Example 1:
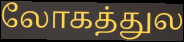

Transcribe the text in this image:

லோகத்துல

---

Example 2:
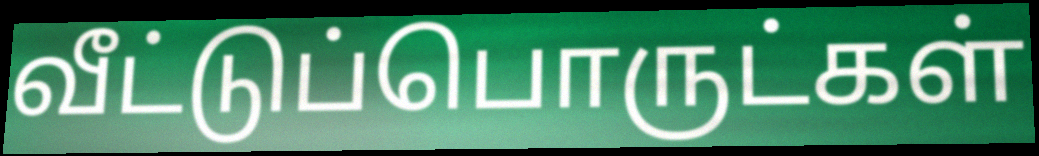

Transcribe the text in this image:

வீட்டுப்பொருட்கள்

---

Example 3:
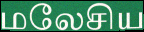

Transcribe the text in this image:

மலேசிய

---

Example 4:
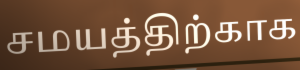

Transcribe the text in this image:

சமயத்திற்காக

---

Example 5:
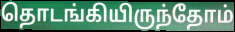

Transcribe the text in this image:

தொடங்கியிருந்தோம்